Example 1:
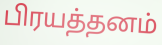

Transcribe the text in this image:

பிரயத்தனம்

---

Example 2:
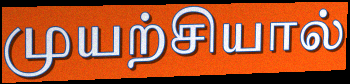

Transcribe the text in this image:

முயற்சியால்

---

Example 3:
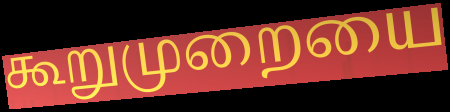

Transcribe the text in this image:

கூறுமுறையை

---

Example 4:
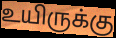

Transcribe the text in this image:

உயிருக்கு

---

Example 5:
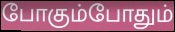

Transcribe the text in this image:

போகும்போதும்